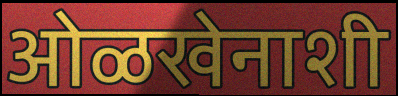
ओळखेनाशी